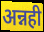
अन्नही